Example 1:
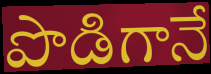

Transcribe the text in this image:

పొడిగానే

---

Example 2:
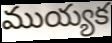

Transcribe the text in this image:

ముయ్యక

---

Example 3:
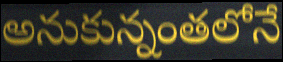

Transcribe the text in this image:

అనుకున్నంతలోనే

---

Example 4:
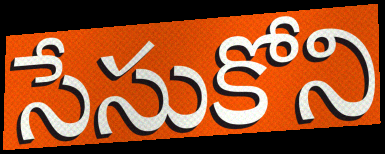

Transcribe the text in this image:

సేసుకోని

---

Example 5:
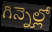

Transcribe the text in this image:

గిన్నెల్లో